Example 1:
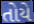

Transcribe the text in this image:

તોયે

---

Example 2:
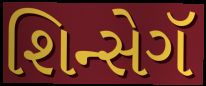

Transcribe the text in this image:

શિન્સેગૅ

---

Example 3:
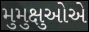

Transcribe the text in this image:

મુમુક્ષુઓએ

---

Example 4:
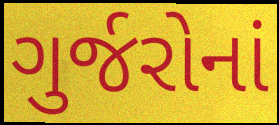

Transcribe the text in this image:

ગુર્જરોનાં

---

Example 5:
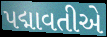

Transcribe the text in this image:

પદ્માવતીએ